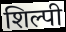
शिल्पी